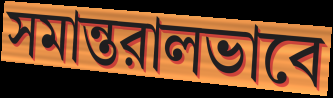
সমান্তরালভাবে